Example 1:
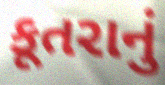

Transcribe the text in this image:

કૂતરાનું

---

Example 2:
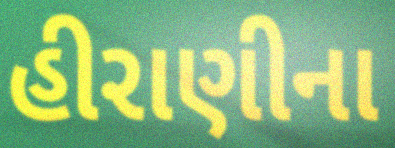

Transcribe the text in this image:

હીરાણીના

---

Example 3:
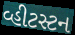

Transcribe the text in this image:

વ્હીટસ્ટન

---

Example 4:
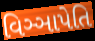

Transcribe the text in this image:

વિઞ્ઞાપેતિ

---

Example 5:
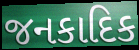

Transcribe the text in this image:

જનકાદિક